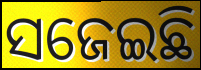
ସଜେଇଛି